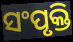
ସଂପୃକ୍ତି